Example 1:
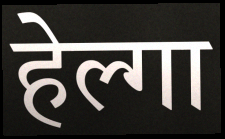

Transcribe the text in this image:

हेल्गा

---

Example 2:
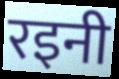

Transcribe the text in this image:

रइनी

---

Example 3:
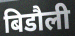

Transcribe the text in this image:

बिडौली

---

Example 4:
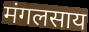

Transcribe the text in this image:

मंगलसाय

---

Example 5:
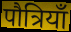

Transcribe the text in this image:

पौत्रियाँ